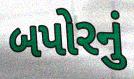
બપોરનું